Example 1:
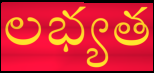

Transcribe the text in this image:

లభ్యత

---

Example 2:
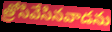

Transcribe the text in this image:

త్రోసివేసినవాడను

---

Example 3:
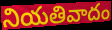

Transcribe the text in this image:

నియతివాదం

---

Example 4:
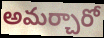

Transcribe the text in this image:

అమర్చారో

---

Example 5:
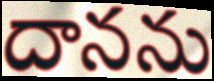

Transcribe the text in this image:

దానను